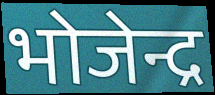
भोजेन्द्र